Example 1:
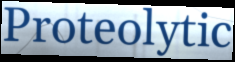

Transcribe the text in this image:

Proteolytic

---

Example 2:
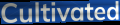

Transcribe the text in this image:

Cultivated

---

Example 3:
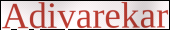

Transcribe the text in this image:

Adivarekar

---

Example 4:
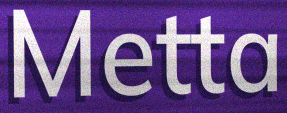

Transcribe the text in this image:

Metta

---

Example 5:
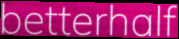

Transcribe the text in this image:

betterhalf